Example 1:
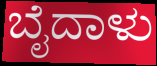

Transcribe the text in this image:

ಬೈದಾಳು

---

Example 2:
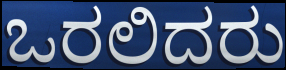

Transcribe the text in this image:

ಒರಲಿದರು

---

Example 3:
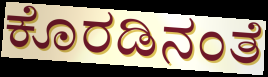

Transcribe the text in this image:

ಕೊರಡಿನಂತೆ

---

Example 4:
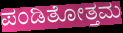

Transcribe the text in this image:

ಪಂಡಿತೋತ್ತಮ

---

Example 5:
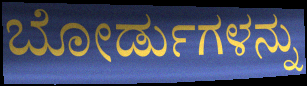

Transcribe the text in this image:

ಬೋರ್ಡುಗಳನ್ನು